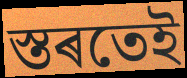
স্তৰতেই